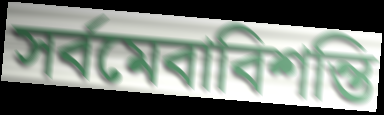
সর্বমেবাবিশন্তি